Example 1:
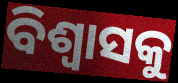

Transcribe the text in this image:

ବିଶ୍ୱାସକୁ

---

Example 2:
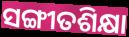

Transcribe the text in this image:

ସଙ୍ଗୀତଶିକ୍ଷା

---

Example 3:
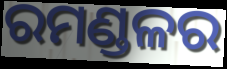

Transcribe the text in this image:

ରମଣ୍ଡଳର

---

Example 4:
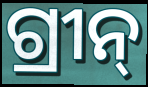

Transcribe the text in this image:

ଗ୍ରୀନ୍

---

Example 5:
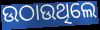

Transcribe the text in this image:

ଉଠାଉଥିଲେ